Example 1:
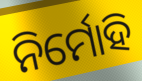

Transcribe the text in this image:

ନିର୍ମୋହି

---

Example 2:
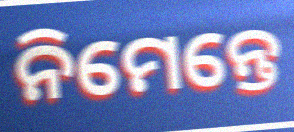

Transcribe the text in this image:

ନିମେନ୍ତେ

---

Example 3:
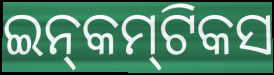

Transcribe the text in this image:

ଇନ୍‍କମ୍‍ଟିକସ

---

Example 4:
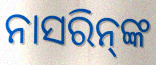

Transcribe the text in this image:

ନାସରିନ୍‌ଙ୍କ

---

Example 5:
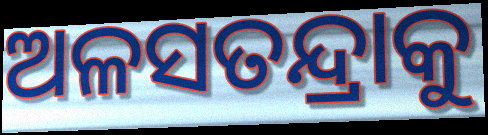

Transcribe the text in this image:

ଅଳସତନ୍ଦ୍ରାକୁ